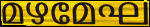
മഴമേഘ